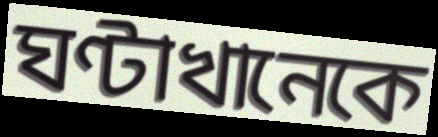
ঘণ্টাখানেকে